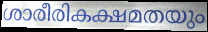
ശാരീരികക്ഷമതയും